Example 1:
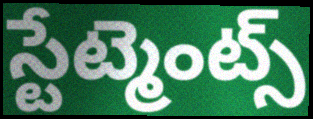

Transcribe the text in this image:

స్టేట్మెంట్స్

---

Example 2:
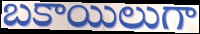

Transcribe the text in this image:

బకాయిలుగా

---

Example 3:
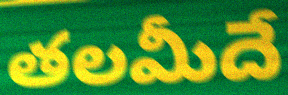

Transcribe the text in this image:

తలమీదే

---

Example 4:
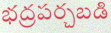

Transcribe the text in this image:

భద్రపర్చబడి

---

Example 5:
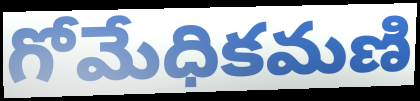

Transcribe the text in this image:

గోమేధికమణి